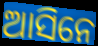
ଆସିନେ